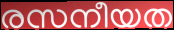
രസനീയത